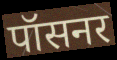
पॉसनर